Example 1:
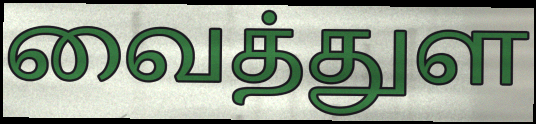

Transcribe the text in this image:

வைத்துள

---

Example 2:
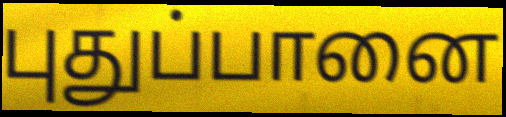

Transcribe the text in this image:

புதுப்பானை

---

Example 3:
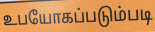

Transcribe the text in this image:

உபயோகப்படும்படி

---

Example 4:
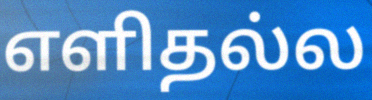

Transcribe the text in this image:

எளிதல்ல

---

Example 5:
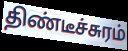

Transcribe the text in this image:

திண்டீச்சுரம்